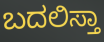
ಬದಲಿಸ್ತಾ